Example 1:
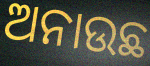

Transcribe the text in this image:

ଅନାଉଛ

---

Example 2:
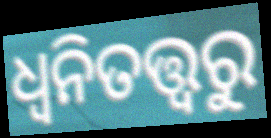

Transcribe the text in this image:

ଧ୍ୱନିତତ୍ତ୍ୱରୁ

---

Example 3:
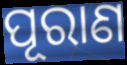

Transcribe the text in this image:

ପୂରାଣ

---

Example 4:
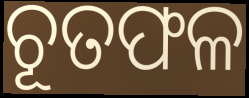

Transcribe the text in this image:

ଚୂତଫଳ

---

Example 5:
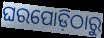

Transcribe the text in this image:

ଘରପୋଡ଼ିଠାରୁ